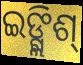
ଇଙ୍ଗ୍ଲିଶ୍